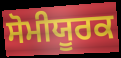
ਸੋਮੀਯੂਰਕ